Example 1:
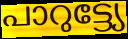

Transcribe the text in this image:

പാറുട്ട്യേ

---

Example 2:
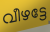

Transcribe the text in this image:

വീഴട്ടേ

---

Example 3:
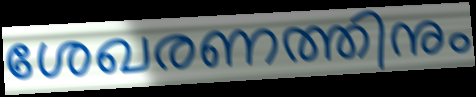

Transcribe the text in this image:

ശേഖരണത്തിനും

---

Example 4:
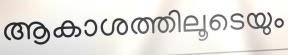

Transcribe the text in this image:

ആകാശത്തിലൂടെയും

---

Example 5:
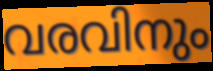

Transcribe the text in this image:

വരവിനും